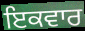
ਇਕਵਾਰ